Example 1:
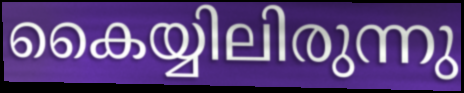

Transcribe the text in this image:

കൈയ്യിലിരുന്നു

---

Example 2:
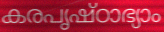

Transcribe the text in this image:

കരപൃഷ്ഠാഭ്യാം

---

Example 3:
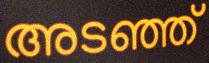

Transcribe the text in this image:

അടഞ്ഞ്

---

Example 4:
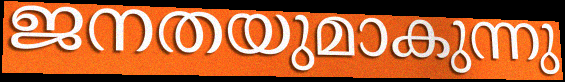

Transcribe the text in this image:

ജനതയുമാകുന്നു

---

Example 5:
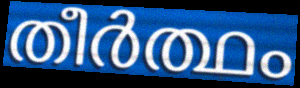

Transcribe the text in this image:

തീർത്ഥം